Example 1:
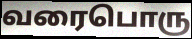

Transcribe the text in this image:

வரைபொரு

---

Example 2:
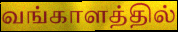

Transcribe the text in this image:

வங்காளத்தில்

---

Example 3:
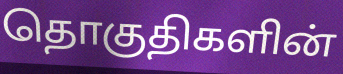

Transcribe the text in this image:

தொகுதிகளின்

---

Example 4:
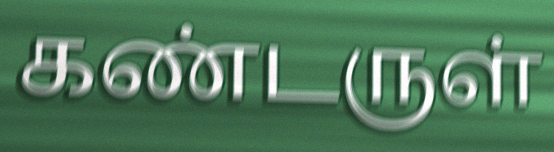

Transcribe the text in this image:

கண்டருள்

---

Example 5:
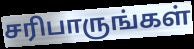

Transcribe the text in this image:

சரிபாருங்கள்